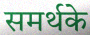
समर्थके